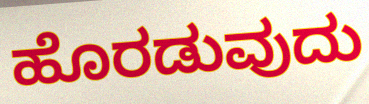
ಹೊರಡುವುದು